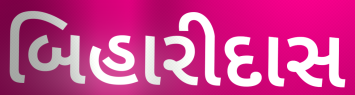
બિહારીદાસ